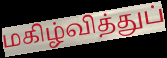
மகிழ்வித்துப்